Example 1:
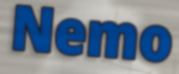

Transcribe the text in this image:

Nemo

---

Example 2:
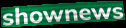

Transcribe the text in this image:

shownews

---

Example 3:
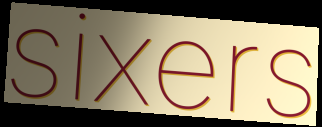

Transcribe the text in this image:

sixers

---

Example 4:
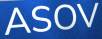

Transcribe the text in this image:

ASOV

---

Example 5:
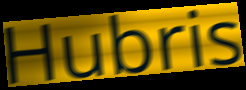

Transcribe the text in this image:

Hubris